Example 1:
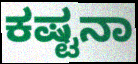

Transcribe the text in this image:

ಕಷ್ಟನಾ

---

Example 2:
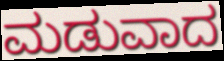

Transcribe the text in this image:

ಮಡುವಾದ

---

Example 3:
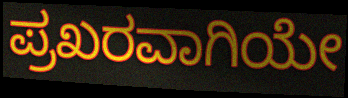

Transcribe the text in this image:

ಪ್ರಖರವಾಗಿಯೇ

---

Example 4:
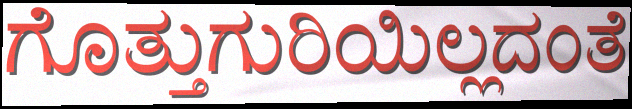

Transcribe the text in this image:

ಗೊತ್ತುಗುರಿಯಿಲ್ಲದಂತೆ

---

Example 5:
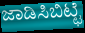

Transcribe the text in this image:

ಜಾಡಿಸಿಬಿಟ್ಟೆ